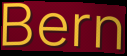
Bern